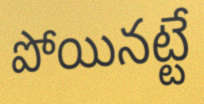
పోయినట్టే